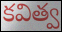
కవిత్వ